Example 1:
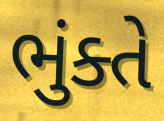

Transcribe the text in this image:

ભુંક્તે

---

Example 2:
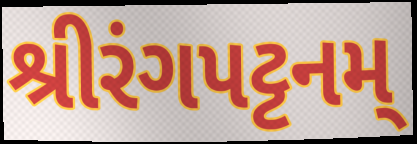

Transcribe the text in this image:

શ્રીરંગપટ્ટનમ્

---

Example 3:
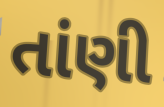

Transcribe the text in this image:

તાંણી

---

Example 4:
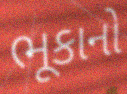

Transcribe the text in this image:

ભૂકાનો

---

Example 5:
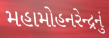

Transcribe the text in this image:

મહામોહનરેન્દ્રનું